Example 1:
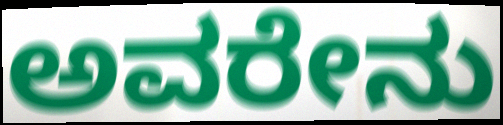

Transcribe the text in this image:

ಅವರೇನು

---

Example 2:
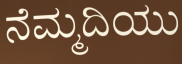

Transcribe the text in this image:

ನೆಮ್ಮದಿಯು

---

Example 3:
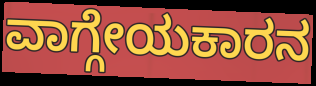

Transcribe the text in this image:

ವಾಗ್ಗೇಯಕಾರನ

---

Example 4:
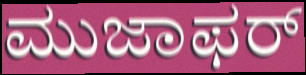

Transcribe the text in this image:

ಮುಜಾಫರ್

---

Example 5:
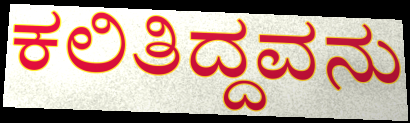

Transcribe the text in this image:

ಕಲಿತಿದ್ದವನು